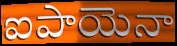
ఐపాయెనా